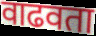
वाढवता